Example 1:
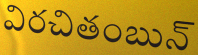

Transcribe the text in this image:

విరచితంబున్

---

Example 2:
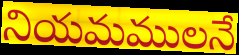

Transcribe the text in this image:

నియమములనే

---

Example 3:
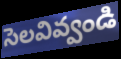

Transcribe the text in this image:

సెలవివ్వండి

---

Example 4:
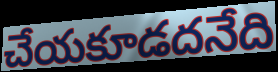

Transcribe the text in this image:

చేయకూడదనేది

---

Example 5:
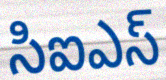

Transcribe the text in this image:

సిఐఎస్